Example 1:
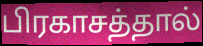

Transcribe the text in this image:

பிரகாசத்தால்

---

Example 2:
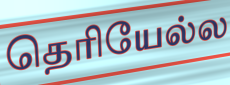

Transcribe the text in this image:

தெரியேல்ல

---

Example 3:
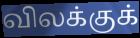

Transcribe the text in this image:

விலக்குக்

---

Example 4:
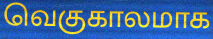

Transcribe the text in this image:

வெகுகாலமாக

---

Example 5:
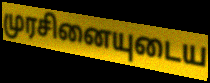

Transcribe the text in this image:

முரசினையுடைய